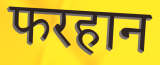
फरहान